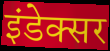
इंडेक्सर